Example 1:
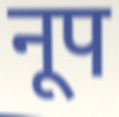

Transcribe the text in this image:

नूप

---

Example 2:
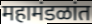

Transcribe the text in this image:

महामंडळांत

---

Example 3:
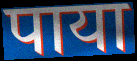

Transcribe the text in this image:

पाया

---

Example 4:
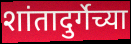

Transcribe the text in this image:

शांतादुर्गेच्या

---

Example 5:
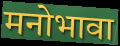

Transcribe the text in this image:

मनोभावा